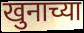
खुनाच्या